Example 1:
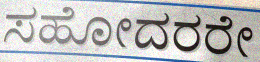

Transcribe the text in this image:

ಸಹೋದರರೇ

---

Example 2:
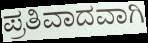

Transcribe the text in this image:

ಪ್ರತಿವಾದವಾಗಿ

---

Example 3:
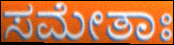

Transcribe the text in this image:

ಸಮೇತಾಃ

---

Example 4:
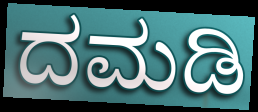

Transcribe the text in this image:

ದಮಡಿ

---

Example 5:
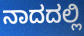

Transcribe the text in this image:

ನಾದದಲ್ಲಿ